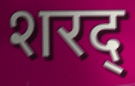
शरद्